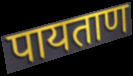
पायताण